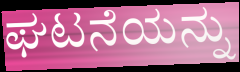
ಘಟನೆಯನ್ನು